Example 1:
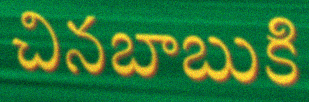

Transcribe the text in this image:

చినబాబుకి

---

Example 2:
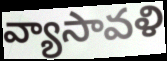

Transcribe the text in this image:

వ్యాసావళి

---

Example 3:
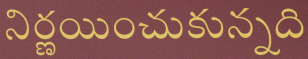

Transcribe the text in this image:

నిర్ణయించుకున్నది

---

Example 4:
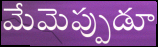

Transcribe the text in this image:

మేమెప్పుడూ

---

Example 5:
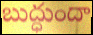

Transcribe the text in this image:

బుద్ధుందా